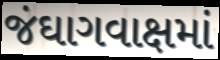
જંઘાગવાક્ષમાં